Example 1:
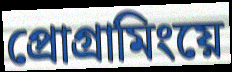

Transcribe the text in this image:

প্রোগ্রামিংয়ে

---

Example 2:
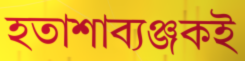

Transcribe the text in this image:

হতাশাব্যঞ্জকই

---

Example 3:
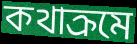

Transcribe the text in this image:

কথাক্রমে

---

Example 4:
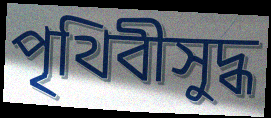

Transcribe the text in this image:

পৃথিবীসুদ্ধ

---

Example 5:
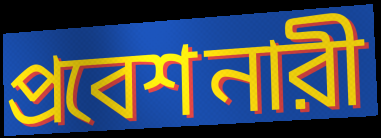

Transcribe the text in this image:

প্রবেশনারী